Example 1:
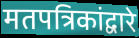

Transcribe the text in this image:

मतपत्रिकांद्वारे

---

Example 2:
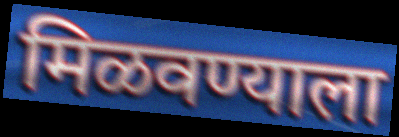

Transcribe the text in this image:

मिळवण्याला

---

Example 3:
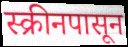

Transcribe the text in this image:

स्क्रीनपासून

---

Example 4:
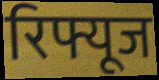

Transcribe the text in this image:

रिफ्यूज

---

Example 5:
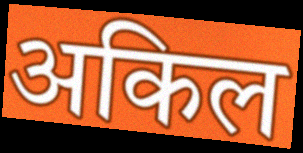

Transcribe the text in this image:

अकिल